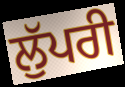
ਲੁੱਪਰੀ